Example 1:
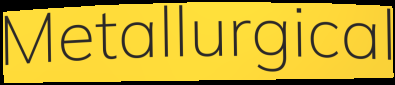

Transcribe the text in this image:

Metallurgical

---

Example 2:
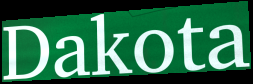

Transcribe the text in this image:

Dakota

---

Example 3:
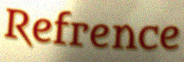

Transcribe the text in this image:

Refrence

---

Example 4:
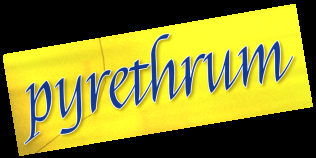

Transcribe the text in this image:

pyrethrum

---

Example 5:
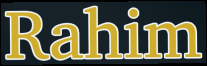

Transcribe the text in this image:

Rahim